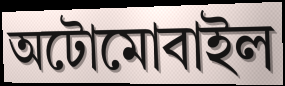
অটোমোবাইল